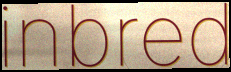
inbred